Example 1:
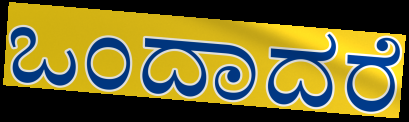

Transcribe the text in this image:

ಒಂದಾದರೆ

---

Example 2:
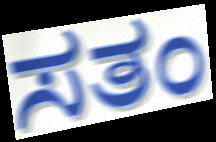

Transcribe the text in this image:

ಸತಂ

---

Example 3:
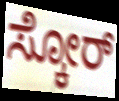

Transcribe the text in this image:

ಸ್ಕೋರ್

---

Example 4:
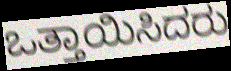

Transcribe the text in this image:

ಒತ್ತಾಯಿಸಿದರು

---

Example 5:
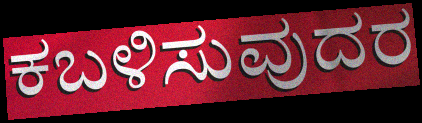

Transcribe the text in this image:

ಕಬಳಿಸುವುದರ